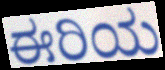
ಈರಿಯ